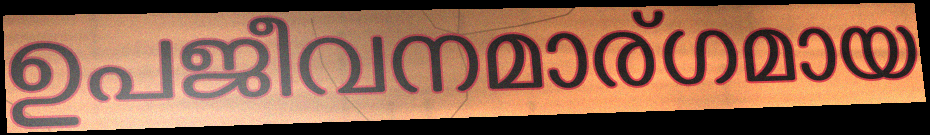
ഉപജീവനമാര്ഗമായ